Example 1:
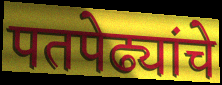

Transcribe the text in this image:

पतपेढ्यांचे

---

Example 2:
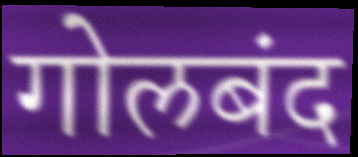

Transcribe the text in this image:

गोलबंद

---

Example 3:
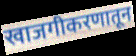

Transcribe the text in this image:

खाजगीकरणातून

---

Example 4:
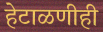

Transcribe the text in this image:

हेटाळणीही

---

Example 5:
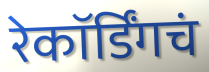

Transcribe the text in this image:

रेकॉर्डिंगचं